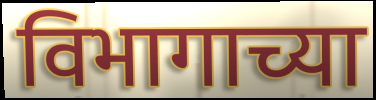
विभागाच्या